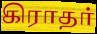
கிராதர்